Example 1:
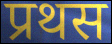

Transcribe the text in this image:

प्रथस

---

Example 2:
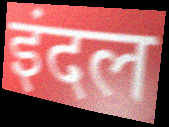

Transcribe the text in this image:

इंदल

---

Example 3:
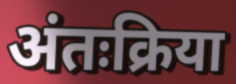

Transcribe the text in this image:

अंतःक्रिया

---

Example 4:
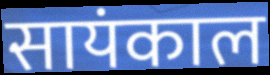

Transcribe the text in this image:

सायंकाल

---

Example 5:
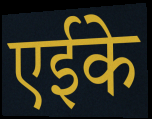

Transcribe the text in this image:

एईके